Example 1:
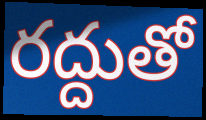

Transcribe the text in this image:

రద్దుతో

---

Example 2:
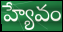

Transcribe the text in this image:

హ్యేవం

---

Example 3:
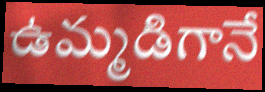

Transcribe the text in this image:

ఉమ్మడిగానే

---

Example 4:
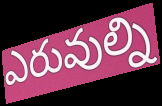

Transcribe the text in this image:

ఎరువుల్ని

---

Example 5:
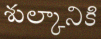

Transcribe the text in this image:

శుల్కానికి